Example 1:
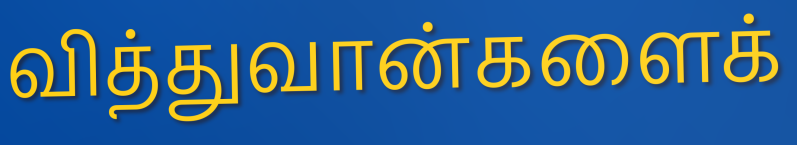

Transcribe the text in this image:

வித்துவான்களைக்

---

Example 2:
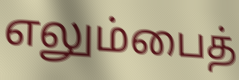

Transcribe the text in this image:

எலும்பைத்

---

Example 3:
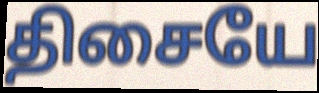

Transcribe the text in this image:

திசையே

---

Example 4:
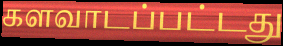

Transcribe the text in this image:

களவாடப்பட்டது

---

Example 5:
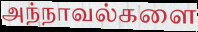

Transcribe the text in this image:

அந்நாவல்களை